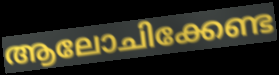
ആലോചിക്കേണ്ട